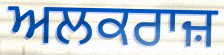
ਅਲਕਰਾਜ਼